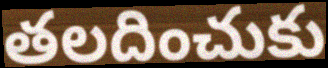
తలదించుకు